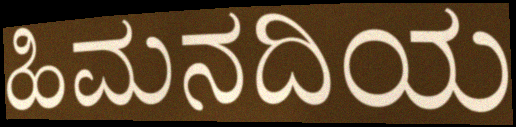
ಹಿಮನದಿಯ